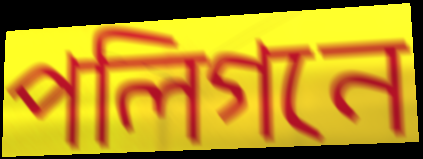
পলিগনে